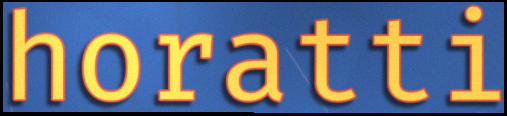
horatti